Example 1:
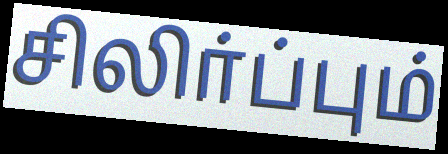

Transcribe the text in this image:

சிலிர்ப்பும்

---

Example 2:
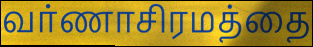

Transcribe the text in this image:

வர்ணாசிரமத்தை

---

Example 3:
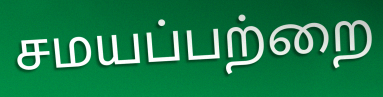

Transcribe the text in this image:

சமயப்பற்றை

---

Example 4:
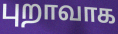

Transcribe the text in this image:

புறாவாக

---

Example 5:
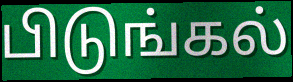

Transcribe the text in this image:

பிடுங்கல்